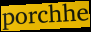
porchhe